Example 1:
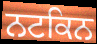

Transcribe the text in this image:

ਨਟਕਿਨ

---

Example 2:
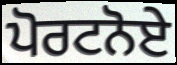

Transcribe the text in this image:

ਪੋਰਟਨੋਏ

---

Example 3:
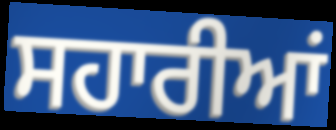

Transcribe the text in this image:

ਸਹਾਰੀਆਂ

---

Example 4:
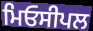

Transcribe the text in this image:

ਮਿਓਸੀਪਲ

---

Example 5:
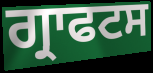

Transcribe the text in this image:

ਗ੍ਰਾਫਟਸ